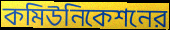
কমিউনিকেশনের